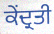
ਕੇਂਦ੍ਰਤੀ